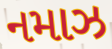
નમાઝ